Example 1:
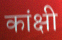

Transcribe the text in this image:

कांक्षी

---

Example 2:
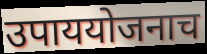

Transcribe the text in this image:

उपाययोजनाच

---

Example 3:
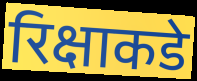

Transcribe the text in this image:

रिक्षाकडे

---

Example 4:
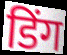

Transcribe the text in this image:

डिंग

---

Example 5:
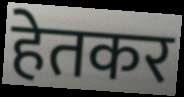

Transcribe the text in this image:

हेतकर